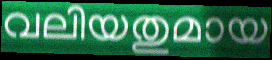
വലിയതുമായ